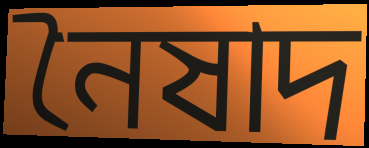
নৈষাদ